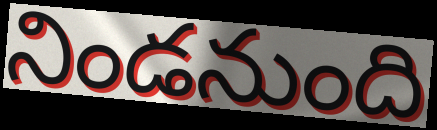
నిండనుంది